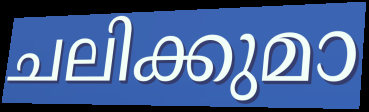
ചലിക്കുമാ